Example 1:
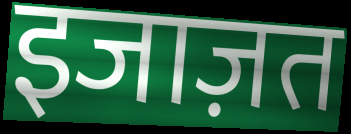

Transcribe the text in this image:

इजाज़त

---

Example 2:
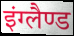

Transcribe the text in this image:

इंग्‍लैण्‍ड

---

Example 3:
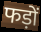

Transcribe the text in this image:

फड़ों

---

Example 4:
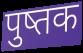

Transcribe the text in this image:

पुष्तक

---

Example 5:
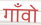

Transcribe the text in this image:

गाँवो